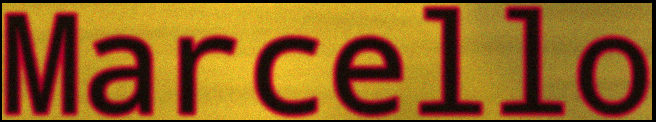
Marcello